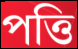
পত্তি